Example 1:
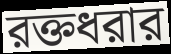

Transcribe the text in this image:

রক্তধরার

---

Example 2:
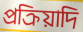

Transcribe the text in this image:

প্রক্রিয়াদি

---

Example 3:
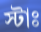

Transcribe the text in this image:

স্টাঃ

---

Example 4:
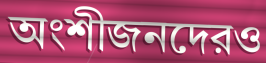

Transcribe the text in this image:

অংশীজনদেরও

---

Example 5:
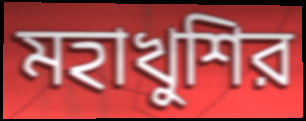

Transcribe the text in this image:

মহাখুশির